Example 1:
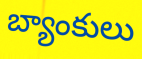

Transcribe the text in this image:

బ్యాంకులు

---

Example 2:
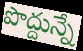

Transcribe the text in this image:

పొద్దున్నే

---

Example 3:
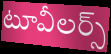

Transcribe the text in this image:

టూవీలర్స్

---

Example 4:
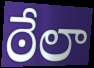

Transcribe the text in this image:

ఠేలా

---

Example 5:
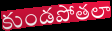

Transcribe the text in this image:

కుండపోతలా